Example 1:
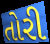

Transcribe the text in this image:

તોરી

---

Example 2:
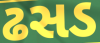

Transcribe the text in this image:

ઢસડ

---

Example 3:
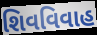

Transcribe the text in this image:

શિવવિવાહ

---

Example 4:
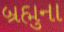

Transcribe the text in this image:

બ્રહ્મુના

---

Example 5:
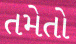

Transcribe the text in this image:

તમેતો